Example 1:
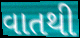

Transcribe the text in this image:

વાતથી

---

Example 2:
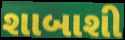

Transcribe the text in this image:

શાબાશી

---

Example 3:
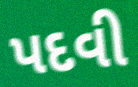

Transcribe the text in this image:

પદવી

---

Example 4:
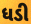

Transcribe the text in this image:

ધડી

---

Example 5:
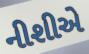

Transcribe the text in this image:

નીશીએ